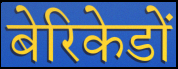
बेरिकेडों